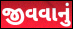
જીવવાનું